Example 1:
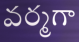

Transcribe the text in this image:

వర్మగా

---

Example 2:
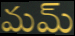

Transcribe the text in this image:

మమ్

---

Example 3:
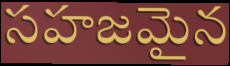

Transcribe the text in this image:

సహజమైన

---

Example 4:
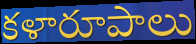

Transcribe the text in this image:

కళారూపాలు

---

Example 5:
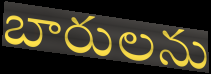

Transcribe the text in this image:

బారులను